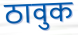
ठावुक